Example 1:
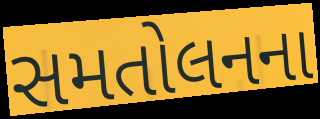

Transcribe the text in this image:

સમતોલનના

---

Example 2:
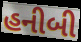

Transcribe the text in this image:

હનીબી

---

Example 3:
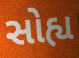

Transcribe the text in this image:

સોહ્ય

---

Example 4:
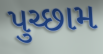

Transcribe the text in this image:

પુચ્છામ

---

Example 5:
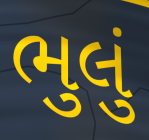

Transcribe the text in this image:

ભુલું